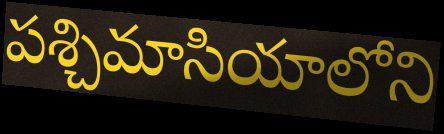
పశ్చిమాసియాలోని